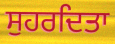
ਸੁਹਰਦਿਤਾ